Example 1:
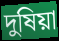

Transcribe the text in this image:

দুষিয়া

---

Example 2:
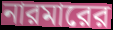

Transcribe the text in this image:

নারমারের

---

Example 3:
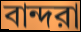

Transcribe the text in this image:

বান্দরা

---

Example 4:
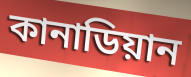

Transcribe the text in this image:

কানাডিয়ান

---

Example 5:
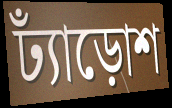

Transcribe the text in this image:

ঢ্যাঁড়োশ